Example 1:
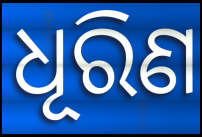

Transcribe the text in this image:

ଧୂରିଣ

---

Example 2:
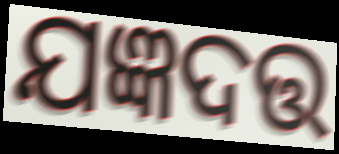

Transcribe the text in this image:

ଯଜ୍ଞଦତ୍ତ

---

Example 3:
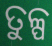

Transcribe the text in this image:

ତୁଳ୍ପ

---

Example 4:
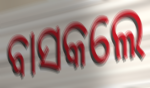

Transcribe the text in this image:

ବାସକଲେ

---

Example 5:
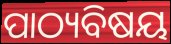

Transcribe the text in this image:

ପାଠ୍ୟବିଷୟ